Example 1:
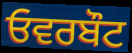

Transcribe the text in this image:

ਓਵਰਬੌਟ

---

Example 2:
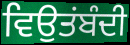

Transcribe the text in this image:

ਵਿਉਤਂਬੰਦੀ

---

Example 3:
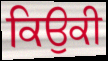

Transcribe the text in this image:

ਕਿਉਕੀ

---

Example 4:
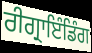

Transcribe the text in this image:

ਰੀਗ੍ਰਾਇੰਡਿੰਗ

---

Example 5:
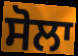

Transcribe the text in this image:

ਸੋਲਾ